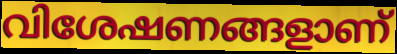
വിശേഷണങ്ങളാണ്